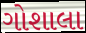
ગોશાલા